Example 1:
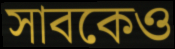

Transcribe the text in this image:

সাবকেও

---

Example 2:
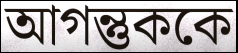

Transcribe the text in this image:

আগন্তুককে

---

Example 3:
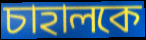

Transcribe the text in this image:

চাহালকে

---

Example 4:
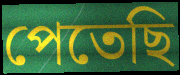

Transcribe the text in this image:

পেতেছি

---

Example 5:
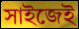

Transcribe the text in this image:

সাইজেই